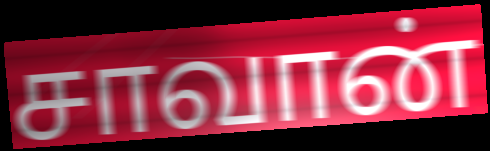
சாவான்